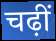
चढ़ीं